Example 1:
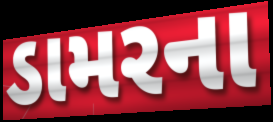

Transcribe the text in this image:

ડામરના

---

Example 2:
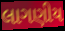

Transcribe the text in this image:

લાગણીય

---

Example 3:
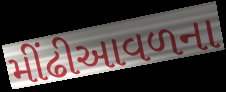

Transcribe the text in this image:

મીંઢીઆવળના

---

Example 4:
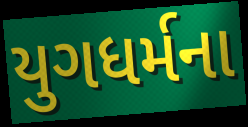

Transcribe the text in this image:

યુગધર્મના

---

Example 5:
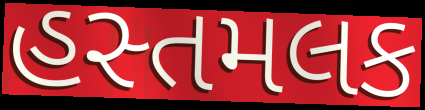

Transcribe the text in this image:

હસ્તમલક